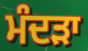
ਮੰਦੜਾ